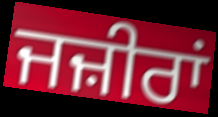
ਜਜ਼ੀਰਾਂ